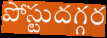
పోస్టుదగ్గర